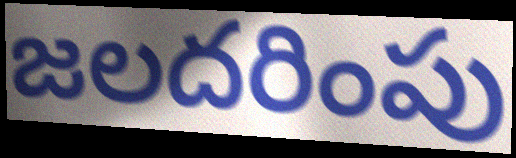
జలదరింపు